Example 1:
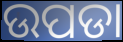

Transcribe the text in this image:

ଉପଡା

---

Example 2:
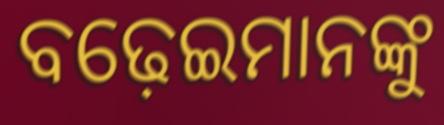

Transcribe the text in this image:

ବଢ଼େଇମାନଙ୍କୁ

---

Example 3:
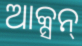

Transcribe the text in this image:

ଆକ୍ସନ୍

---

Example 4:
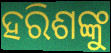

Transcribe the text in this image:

ହରିଶଙ୍କୁ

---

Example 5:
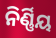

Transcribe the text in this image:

ନିର୍ଣ୍ଣିୟ